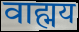
वाह्मय